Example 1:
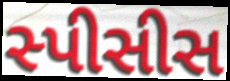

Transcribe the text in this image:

સ્પીસીસ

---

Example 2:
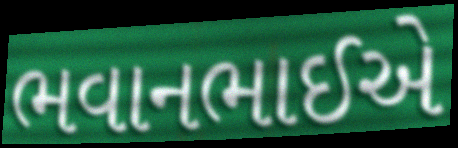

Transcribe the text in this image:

ભવાનભાઈએ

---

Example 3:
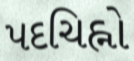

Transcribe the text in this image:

પદચિહ્નો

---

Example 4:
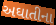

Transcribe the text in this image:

અઘાતીના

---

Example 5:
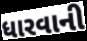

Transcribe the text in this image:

ધારવાની